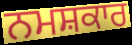
ਨਮਸ਼ਕਾਰ